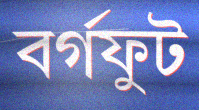
বর্গফুট